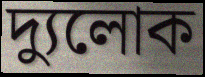
দ্যুলোক